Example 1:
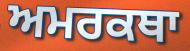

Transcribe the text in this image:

ਅਮਰਕਥਾ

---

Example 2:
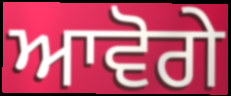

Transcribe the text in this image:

ਆਵੋਗੇ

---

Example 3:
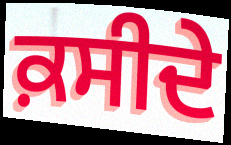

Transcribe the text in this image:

ਕ਼ਸੀਦੇ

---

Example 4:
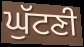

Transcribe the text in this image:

ਘੁੱਟਣੀ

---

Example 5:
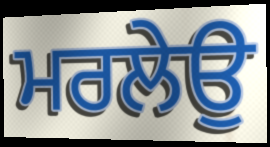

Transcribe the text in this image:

ਮਰਲੇਉ